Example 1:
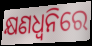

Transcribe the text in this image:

କ୍ଷଣଧ୍ୱନିରେ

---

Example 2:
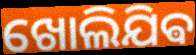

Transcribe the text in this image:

ଖୋଲିଯିଵ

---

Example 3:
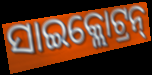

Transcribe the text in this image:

ସାଇକ୍ଲୋଟ୍ରନ୍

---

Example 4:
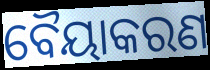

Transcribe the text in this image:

ବୈୟାକରଣ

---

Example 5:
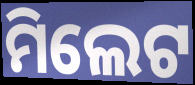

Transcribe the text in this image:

ମିଲେଟ